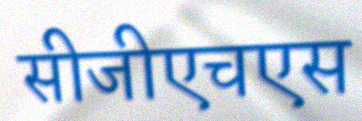
सीजीएचएस